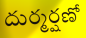
దుర్మర్షణో